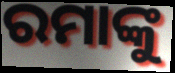
ରମାଙ୍କୁ